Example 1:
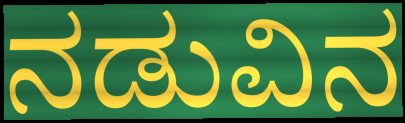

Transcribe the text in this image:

ನಡುವಿನ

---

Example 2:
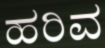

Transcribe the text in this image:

ಹರಿವ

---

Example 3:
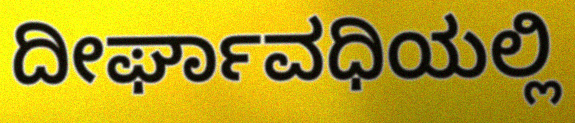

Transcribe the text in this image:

ದೀರ್ಘಾವಧಿಯಲ್ಲಿ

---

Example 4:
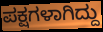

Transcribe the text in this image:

ಪಕ್ಷಗಳಾಗಿದ್ದು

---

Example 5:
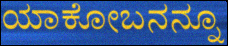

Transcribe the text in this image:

ಯಾಕೋಬನನ್ನೂ